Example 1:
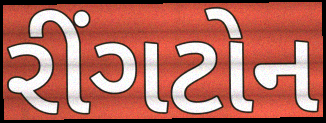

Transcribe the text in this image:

રીંગટોન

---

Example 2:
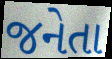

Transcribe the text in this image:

જનેતા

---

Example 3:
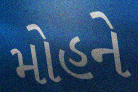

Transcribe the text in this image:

મોહને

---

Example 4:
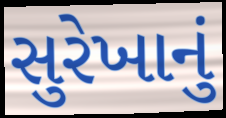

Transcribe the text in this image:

સુરેખાનું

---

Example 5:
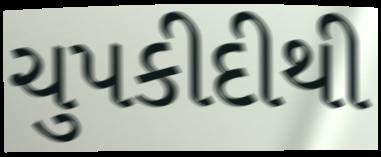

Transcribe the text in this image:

ચુપકીદીથી